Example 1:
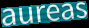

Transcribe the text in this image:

aureas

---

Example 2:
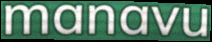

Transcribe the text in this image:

manavu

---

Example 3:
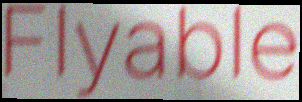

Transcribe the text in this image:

Flyable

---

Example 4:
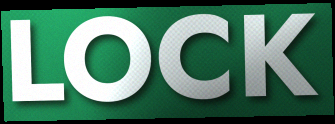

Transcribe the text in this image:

LOCK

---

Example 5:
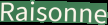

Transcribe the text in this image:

Raisonne